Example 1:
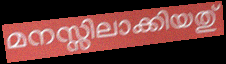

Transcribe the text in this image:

മനസ്സിലാക്കിയതു്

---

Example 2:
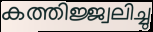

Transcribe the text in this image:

കത്തിജ്ജ്വലിച്ചു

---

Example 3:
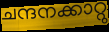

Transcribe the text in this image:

ചന്ദനക്കാറ്റു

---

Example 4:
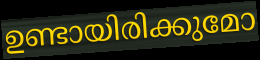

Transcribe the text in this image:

ഉണ്ടായിരിക്കുമോ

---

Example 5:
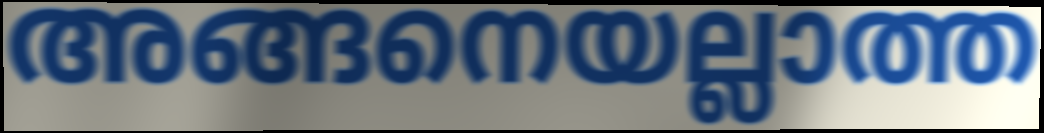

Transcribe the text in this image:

അങ്ങനെയല്ലാത്ത